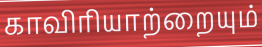
காவிரியாற்றையும்